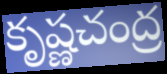
కృష్ణచంద్ర